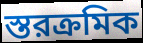
স্তরক্রমিক